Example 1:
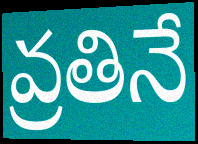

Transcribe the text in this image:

వ్రతినే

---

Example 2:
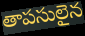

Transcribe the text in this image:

తాపసులైన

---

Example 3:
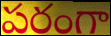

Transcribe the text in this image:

పరంగా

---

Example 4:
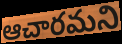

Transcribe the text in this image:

ఆచారమని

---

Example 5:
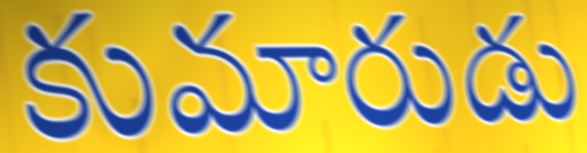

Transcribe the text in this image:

కుమారుడు